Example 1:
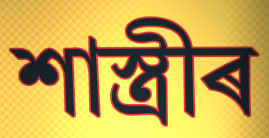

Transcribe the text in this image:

শাস্ত্ৰীৰ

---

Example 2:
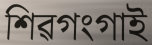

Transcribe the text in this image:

শিৱগংগাই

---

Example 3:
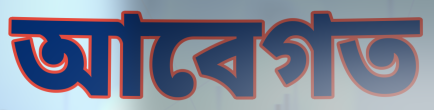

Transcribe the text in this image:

আবেগত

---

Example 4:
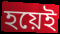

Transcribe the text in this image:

হয়েই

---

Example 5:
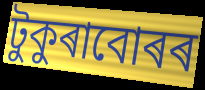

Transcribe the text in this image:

টুকুৰাবোৰৰ